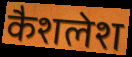
कैशलेश